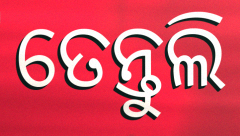
ତେନ୍ତୁଲି